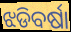
ଝଡିବର୍ଷା